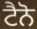
ਟੈਨੋ